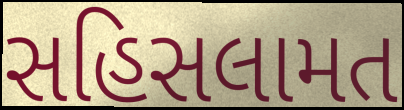
સહિસલામત